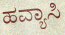
ಹವ್ಯಾಸಿ